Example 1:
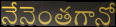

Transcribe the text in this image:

నేనెంతగానో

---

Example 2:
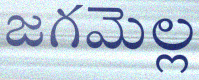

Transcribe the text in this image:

జగమెల్ల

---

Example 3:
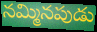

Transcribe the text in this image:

నమ్మినపుడు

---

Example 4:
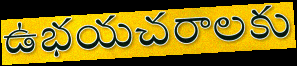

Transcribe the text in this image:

ఉభయచరాలకు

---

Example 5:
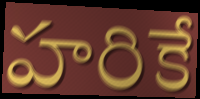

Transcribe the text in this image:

హరికే